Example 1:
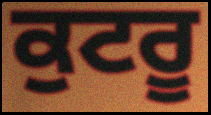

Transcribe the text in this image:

ਕੁਟਰੂ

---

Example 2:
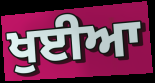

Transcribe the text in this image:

ਖੁਈਆ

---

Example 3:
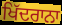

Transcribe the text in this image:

ਖਿੱਦਰਾਨਾ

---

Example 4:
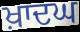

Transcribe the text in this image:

ਖ਼ਾਦਘ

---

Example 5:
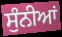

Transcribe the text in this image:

ਸੁੰਨੀਆਂ